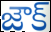
జౌక్